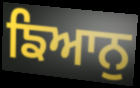
ਙਿਆਨੁ